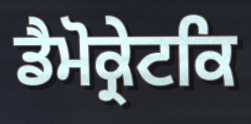
ਡੈਮੋਕ੍ਰੇਟਕਿ